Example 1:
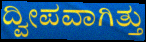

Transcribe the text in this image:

ದ್ವೀಪವಾಗಿತ್ತು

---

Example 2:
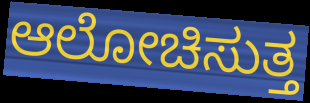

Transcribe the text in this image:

ಆಲೋಚಿಸುತ್ತ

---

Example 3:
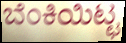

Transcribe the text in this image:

ಬೆಂಕಿಯಿಟ್ಟ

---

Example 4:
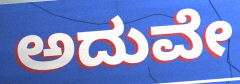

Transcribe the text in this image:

ಅದುವೇ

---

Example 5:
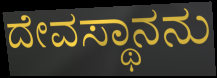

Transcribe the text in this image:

ದೇವಸ್ಥಾನನು